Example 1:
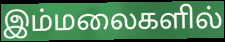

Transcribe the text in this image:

இம்மலைகளில்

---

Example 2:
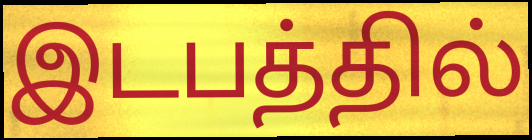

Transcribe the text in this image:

இடபத்தில்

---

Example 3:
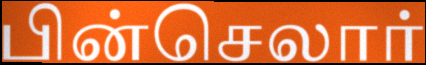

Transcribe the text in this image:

பின்செலார்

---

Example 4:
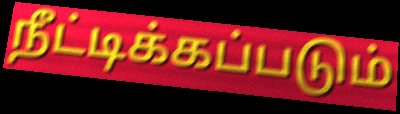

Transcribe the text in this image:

நீட்டிக்கப்படும்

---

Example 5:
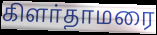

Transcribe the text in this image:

கிளர்தாமரை